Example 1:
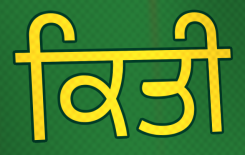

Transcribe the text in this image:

ਕਿਤੀ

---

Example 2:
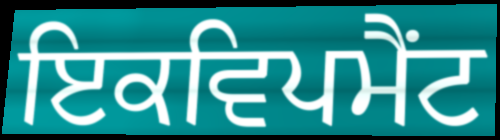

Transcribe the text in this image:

ਇਕਵਿਪਮੈਂਟ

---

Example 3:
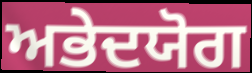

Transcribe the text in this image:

ਅਭੇਦਯੋਗ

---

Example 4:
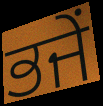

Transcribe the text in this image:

ਭਜੇਂ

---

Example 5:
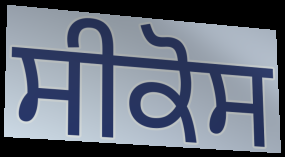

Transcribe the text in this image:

ਸੀਕੋਸ